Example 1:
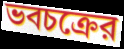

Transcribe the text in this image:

ভবচক্রের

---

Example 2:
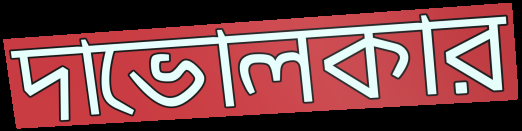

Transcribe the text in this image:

দাভোলকার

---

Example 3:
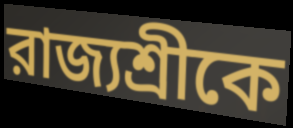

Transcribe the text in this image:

রাজ্যশ্রীকে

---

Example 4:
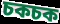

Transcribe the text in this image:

চকচক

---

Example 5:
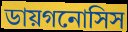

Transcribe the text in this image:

ডায়গনোসিস